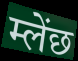
म्लेंछ